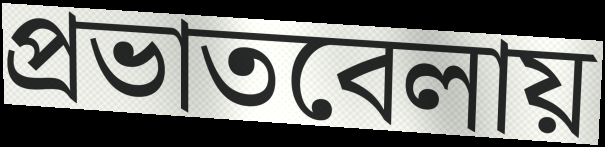
প্রভাতবেলায়